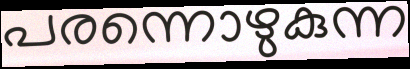
പരന്നൊഴുകുന്ന